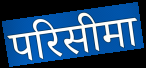
परिसीमा